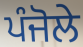
ਪੰਜੋਲੇ